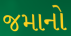
જમાનો